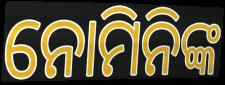
ନୋମିନିଙ୍କ